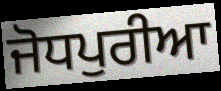
ਜੋਧਪੁਰੀਆ